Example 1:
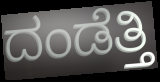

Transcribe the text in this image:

ದಂಡೆತ್ತಿ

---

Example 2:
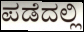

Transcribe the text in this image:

ಪಡೆದಲ್ಲಿ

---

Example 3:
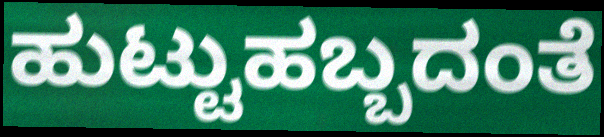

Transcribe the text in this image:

ಹುಟ್ಟುಹಬ್ಬದಂತೆ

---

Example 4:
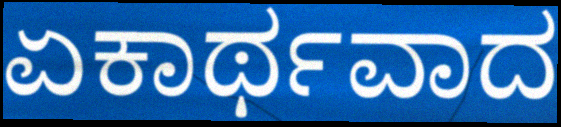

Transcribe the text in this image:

ಏಕಾರ್ಥವಾದ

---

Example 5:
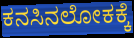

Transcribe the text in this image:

ಕನಸಿನಲೋಕಕ್ಕೆ